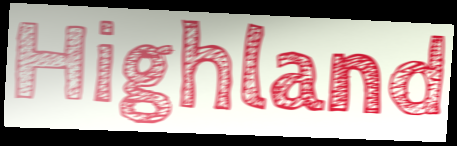
Highland